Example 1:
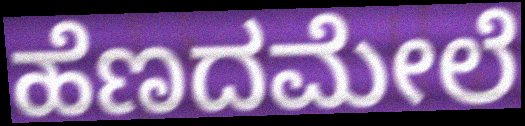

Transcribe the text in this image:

ಹೆಣದಮೇಲೆ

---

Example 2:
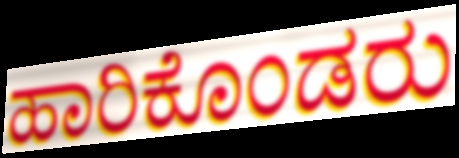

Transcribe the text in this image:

ಹಾರಿಕೊಂಡರು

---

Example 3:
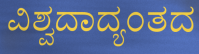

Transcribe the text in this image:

ವಿಶ್ವದಾದ್ಯಂತದ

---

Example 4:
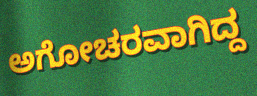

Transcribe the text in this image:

ಅಗೋಚರವಾಗಿದ್ದ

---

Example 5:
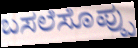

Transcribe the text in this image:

ಬಸಲೆಸೊಪ್ಪು